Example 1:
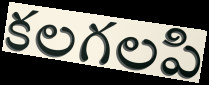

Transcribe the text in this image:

కలగలపి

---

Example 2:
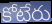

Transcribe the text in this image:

కోటేరు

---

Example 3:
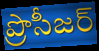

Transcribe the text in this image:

ప్రొసీజర్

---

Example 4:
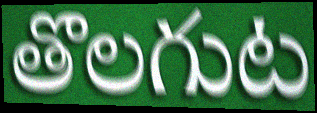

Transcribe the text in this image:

తొలగుట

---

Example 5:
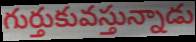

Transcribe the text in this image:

గుర్తుకువస్తున్నాడు